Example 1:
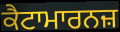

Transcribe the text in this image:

ਕੈਟਾਮਾਰਨਜ਼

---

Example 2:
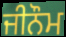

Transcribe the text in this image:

ਜੀਨੌਮ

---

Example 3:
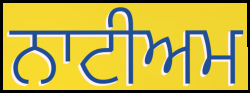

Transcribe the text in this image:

ਨਾਟੀਅਮ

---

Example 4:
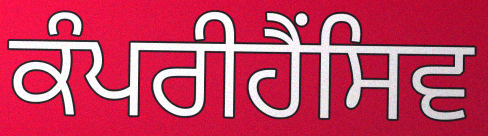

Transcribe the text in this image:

ਕੰਪਰੀਹੈਂਸਿਵ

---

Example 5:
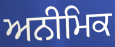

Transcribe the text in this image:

ਅਨੀਮਿਕ